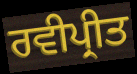
ਰਵੀਪ੍ਰੀਤ